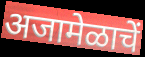
अजामेळाचें